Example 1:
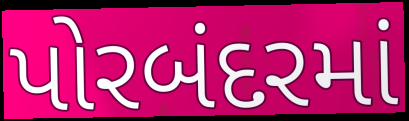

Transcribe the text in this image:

પોરબંદરમાં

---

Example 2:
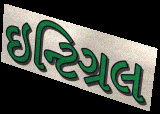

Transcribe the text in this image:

ઇન્ટિગ્રલ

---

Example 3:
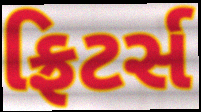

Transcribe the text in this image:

ફ્રિટર્સ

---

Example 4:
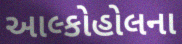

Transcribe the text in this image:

આલ્કોહોલના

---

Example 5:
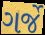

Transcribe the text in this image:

ગર્જે